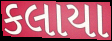
કલાયા